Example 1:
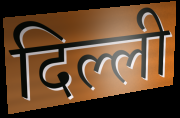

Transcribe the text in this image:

दिल्ली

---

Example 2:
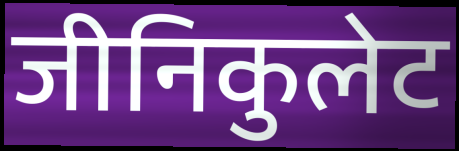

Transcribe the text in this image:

जीनिकुलेट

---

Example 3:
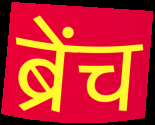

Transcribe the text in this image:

ब्रेंच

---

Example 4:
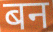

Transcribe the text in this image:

बन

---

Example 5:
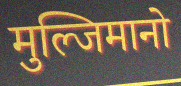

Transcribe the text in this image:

मुल्जिमानो